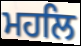
ਮਹਲਿ